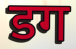
डग